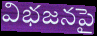
విభజనపై